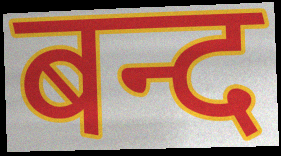
बन्द